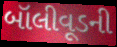
બૉલીવૂડની